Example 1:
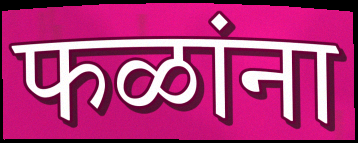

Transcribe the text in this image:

फळांना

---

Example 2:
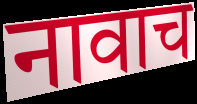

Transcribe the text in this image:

नावाच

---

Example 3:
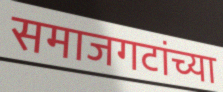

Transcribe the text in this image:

समाजगटांच्या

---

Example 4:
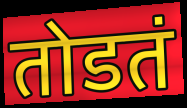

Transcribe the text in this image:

तोडतं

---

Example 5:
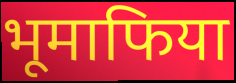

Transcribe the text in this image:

भूमाफिया